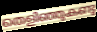
തെളിഞ്ഞുകണ്ടു